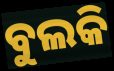
ବୁଲକି